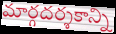
మార్గదర్శకాన్ని